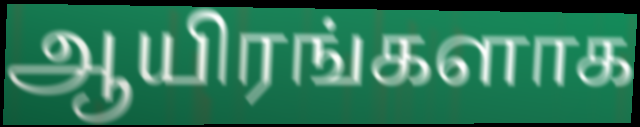
ஆயிரங்களாக